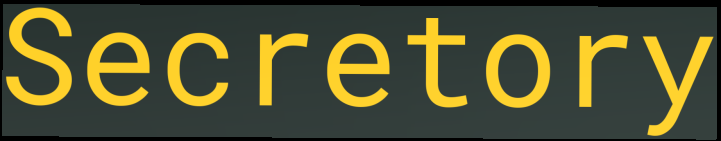
Secretory